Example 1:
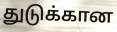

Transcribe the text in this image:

துடுக்கான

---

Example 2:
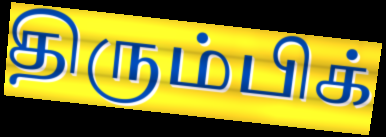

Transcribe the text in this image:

திரும்பிக்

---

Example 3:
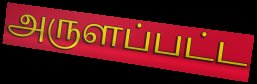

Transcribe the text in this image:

அருளப்பட்ட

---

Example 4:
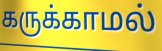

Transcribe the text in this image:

கருக்காமல்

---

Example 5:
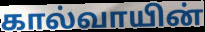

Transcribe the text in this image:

கால்வாயின்